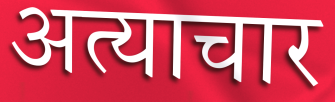
अत्‍याचार